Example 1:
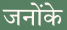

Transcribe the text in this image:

जनोंके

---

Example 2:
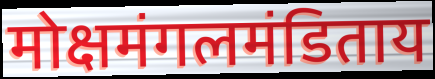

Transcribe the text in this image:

मोक्षमंगलमंडिताय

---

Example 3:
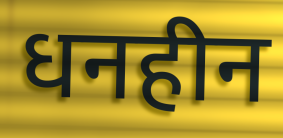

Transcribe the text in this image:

धनहीन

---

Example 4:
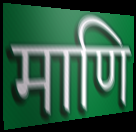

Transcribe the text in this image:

माणि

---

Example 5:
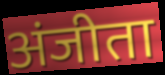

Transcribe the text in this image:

अंजीता